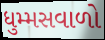
ધુમ્મસવાળો